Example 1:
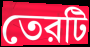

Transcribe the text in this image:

তেরটি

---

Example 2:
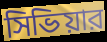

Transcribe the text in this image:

সিভিয়ার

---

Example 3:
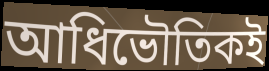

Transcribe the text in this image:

আধিভৌতিকই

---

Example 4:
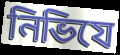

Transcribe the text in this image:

নিভিযে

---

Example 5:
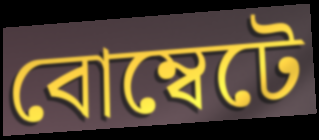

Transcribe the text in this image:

বোম্বেটে